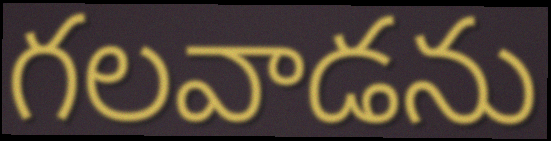
గలవాడను